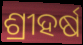
ଶ୍ରୀହର୍ଷ